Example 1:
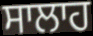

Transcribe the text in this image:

ਸਾਲਾਹ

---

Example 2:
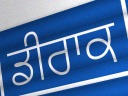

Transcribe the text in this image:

ਡੀਰਾਕ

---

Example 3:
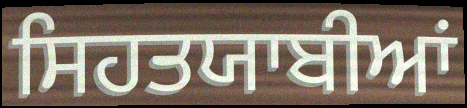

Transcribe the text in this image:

ਸਿਹਤਯਾਬੀਆਂ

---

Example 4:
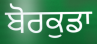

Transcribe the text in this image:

ਬੋਰਕੁਡਾ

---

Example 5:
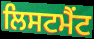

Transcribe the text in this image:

ਲਿਸਟਮੈਂਟ